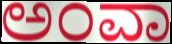
ಅಂವಾ